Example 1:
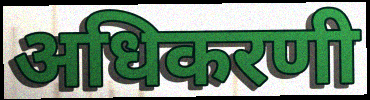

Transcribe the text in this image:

अधिकरणी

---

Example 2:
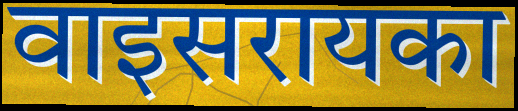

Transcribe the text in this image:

वाइसरायका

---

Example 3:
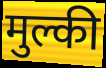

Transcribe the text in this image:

मुल्की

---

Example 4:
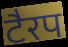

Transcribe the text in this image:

टैरप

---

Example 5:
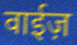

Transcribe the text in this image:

वाईज़